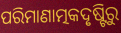
ପରିମାଣାତ୍ମକଦୃଷ୍ଟିରୁ